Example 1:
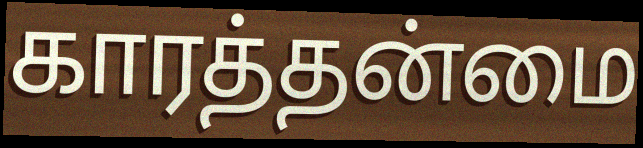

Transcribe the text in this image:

காரத்தன்மை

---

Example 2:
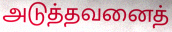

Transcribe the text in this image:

அடுத்தவனைத்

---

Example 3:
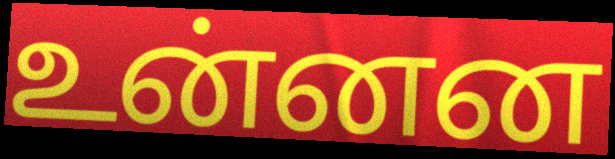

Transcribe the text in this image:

உன்னன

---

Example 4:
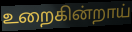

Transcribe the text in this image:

உறைகின்றாய்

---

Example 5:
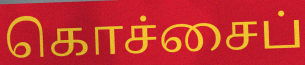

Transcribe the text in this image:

கொச்சைப்